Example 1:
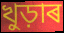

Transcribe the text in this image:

খুড়াৰ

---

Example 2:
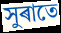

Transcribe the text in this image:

সুৰাতে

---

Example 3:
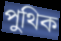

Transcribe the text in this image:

পুথিক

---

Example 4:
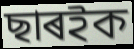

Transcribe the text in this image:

ছাৰইক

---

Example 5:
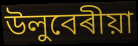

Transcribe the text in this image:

উলুবেৰীয়া